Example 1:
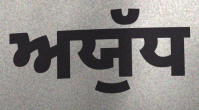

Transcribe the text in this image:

ਅਯੁੱਧ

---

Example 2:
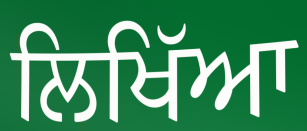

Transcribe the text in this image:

ਲਿਖਿੱਆ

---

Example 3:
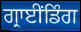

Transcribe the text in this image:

ਗ੍ਰਾਈਂਡਿੰਗ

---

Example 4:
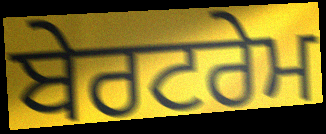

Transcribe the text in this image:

ਬੇਰਟਰੇਮ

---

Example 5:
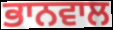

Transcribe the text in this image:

ਭਾਨਵਾਲ